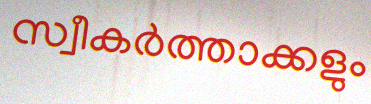
സ്വീകർത്താക്കളും